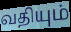
வதியும்